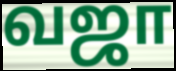
வஜா